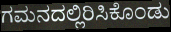
ಗಮನದಲ್ಲಿರಿಸಿಕೊಂಡು